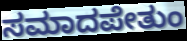
ಸಮಾದಪೇತುಂ